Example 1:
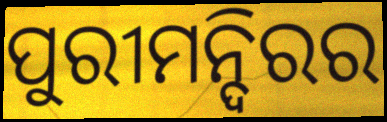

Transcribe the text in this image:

ପୁରୀମନ୍ଦିରର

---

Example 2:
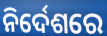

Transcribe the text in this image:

ନିର୍ଦେଶରେ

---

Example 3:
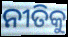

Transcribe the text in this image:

ନୀତିକୁ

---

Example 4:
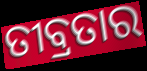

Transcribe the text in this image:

ତୀବ୍ରତାର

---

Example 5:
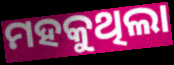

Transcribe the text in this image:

ମହକୁଥିଲା